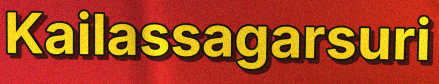
Kailassagarsuri